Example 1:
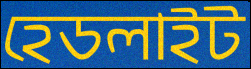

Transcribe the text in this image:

হেডলাইট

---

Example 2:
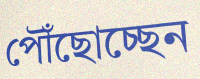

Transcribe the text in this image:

পৌঁছোচ্ছেন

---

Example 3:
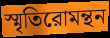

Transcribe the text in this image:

স্মৃতিরোমন্থন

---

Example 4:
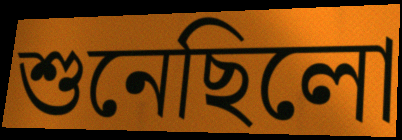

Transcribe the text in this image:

শুনেছিলো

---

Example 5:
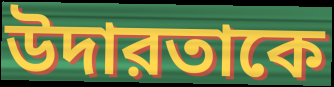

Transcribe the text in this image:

উদারতাকে